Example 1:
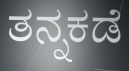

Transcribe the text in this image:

ತನ್ನಕಡೆ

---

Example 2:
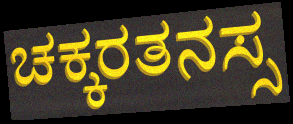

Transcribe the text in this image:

ಚಕ್ಕರತನಸ್ಸ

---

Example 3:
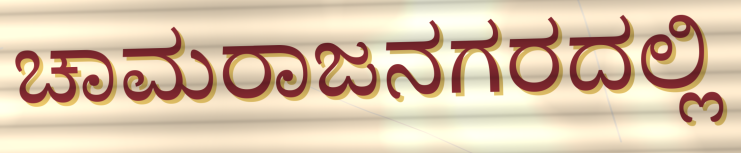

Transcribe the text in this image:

ಚಾಮರಾಜನಗರದಲ್ಲಿ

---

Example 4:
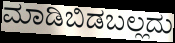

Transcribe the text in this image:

ಮಾಡಿಬಿಡಬಲ್ಲದು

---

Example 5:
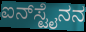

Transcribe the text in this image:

ಐನ್‌ಸ್ಟೈನನ